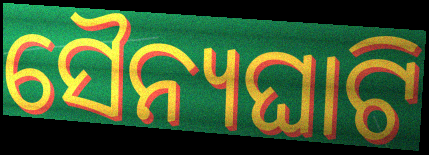
ସୈନ୍ୟଘାଟି